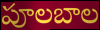
పూలబాల